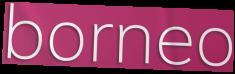
borneo